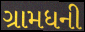
ગ્રામધની